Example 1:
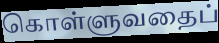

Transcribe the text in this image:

கொள்ளுவதைப்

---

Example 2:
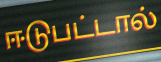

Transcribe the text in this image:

ஈடுபட்டால்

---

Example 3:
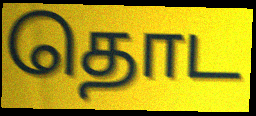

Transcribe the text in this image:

தொட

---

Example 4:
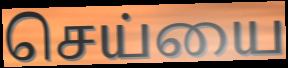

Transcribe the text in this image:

செய்யை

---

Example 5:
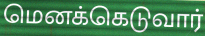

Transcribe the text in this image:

மெனக்கெடுவார்